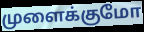
முளைக்குமோ